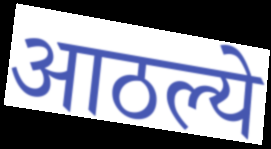
आठल्ये